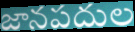
జానపదుల